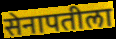
सेनापतीला